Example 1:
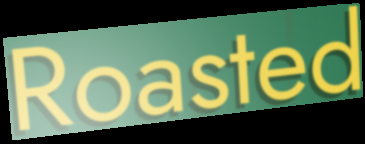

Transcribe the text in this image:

Roasted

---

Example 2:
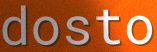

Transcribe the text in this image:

dosto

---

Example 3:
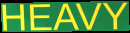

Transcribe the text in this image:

HEAVY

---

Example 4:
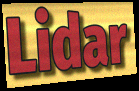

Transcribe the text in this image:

Lidar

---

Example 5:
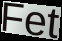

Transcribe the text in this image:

Fet